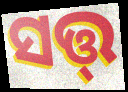
ସତ୍ତ୍